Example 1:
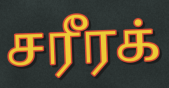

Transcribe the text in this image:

சரீரக்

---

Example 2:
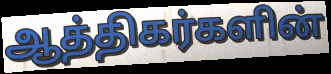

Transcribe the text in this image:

ஆத்திகர்களின்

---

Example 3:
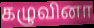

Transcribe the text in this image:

கழுவினா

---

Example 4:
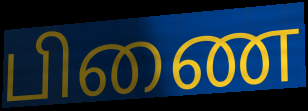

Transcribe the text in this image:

பிணை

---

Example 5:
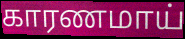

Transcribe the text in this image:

காரணமாய்